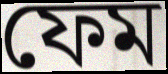
ফেম